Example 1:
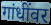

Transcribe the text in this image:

गांधींवर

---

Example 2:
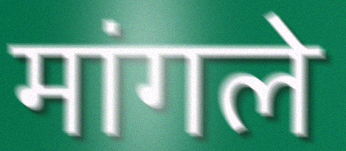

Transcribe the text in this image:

मांगले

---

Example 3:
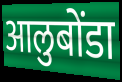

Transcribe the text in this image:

आलुबोंडा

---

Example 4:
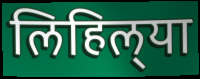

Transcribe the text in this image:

लिहिल्या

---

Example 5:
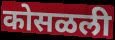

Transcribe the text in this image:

कोसळली